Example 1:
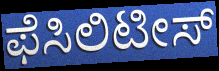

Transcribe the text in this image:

ಫೆಸಿಲಿಟೀಸ್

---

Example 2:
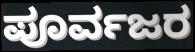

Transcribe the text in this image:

ಪೂರ್ವಜರ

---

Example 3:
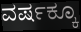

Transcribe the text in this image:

ವರ್ಷಕ್ಕೂ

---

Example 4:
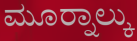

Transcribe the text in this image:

ಮೂರ‍್ನಾಲ್ಕು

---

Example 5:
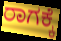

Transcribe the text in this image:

ರಾಗಕ್ಕೆ